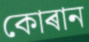
কোৰান